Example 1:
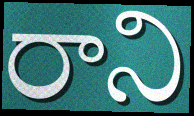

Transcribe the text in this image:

రాని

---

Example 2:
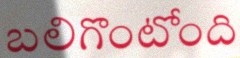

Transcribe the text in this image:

బలిగొంటోంది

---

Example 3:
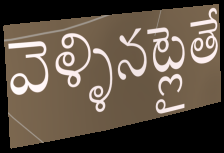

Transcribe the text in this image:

వెళ్ళినట్లైతే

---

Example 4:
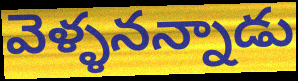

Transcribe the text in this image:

వెళ్ళనన్నాడు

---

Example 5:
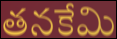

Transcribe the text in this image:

తనకేమి